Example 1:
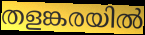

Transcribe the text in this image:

തളങ്കരയിൽ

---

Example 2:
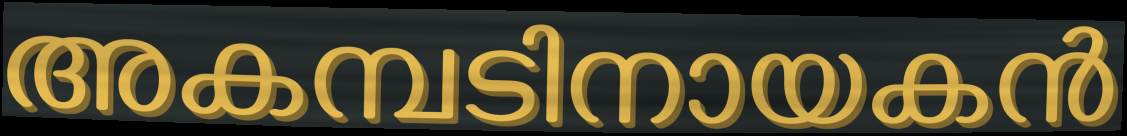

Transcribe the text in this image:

അകമ്പടിനായകൻ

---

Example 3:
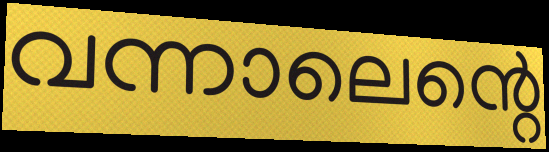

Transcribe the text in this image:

വന്നാലെന്റെ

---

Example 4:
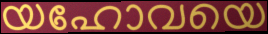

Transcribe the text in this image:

യഹോവയെ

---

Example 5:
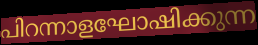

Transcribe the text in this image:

പിറന്നാളഘോഷിക്കുന്ന